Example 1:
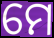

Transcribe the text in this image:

ମେ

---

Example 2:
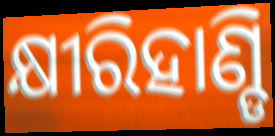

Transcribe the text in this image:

କ୍ଷୀରିହାଣ୍ଡି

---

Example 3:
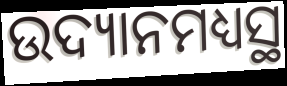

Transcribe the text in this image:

ଉଦ୍ୟାନମଧ୍ୟସ୍ଥ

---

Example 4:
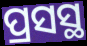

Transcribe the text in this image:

ପ୍ରସସ୍ଥ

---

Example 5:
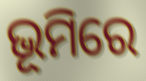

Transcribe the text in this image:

ଭୂମିରେ